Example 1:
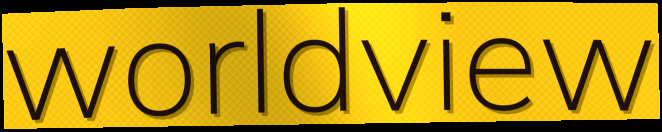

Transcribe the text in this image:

worldview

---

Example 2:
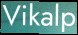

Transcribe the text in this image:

Vikalp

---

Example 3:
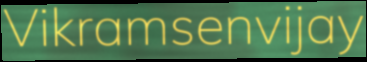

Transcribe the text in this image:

Vikramsenvijay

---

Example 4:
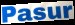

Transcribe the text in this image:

Pasur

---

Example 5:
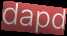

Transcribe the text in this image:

dapd